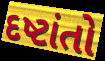
દષ્ટાંતો